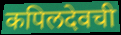
कपिलदेवची